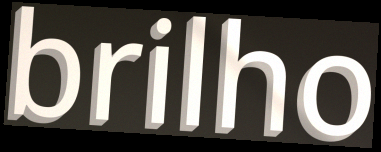
brilho